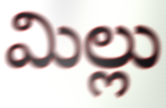
మిల్లు